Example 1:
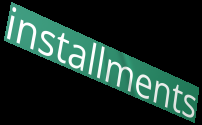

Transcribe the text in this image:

installments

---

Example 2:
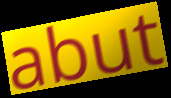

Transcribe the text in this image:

abut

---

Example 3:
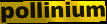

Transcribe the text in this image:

pollinium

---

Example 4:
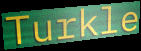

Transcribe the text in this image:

Turkle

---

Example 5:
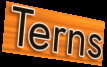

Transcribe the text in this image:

Terns